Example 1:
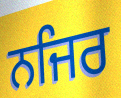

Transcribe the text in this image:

ਨਜਿਰ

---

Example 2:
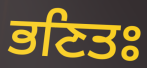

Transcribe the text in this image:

ਭਣਿਤਃ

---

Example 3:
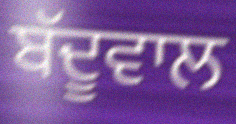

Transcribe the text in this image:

ਬੱਦੂਵਾਲ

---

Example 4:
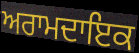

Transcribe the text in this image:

ਅਰਾਮਦਾਇਕ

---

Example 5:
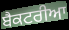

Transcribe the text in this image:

ਬੈਕਟਰੀਆ